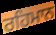
ਰਹਿਮਾਨ